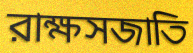
রাক্ষসজাতি